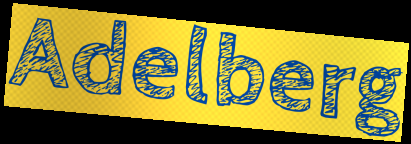
Adelberg